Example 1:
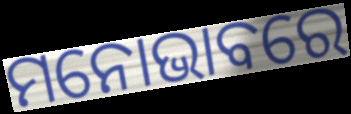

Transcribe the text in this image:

ମନୋଭାବରେ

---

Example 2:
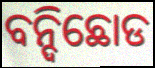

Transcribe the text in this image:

ବନ୍ଦିଛୋଡ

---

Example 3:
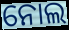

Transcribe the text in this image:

ନୋଲ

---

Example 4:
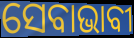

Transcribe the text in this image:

ସେବାଭାବୀ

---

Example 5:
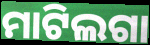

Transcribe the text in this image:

ମାଟିଲଗା